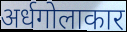
अर्धगोलाकार